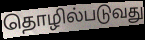
தொழில்படுவது